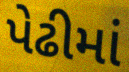
પેઢીમાં